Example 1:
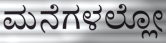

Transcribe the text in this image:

ಮನೆಗಳಲ್ಲೋ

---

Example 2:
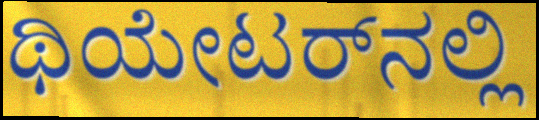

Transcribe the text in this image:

ಥಿಯೇಟರ್‌ನಲ್ಲಿ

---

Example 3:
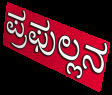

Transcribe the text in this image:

ಪ್ರಫುಲ್ಲನ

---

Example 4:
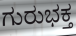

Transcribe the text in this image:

ಗುರುಭಕ್ತ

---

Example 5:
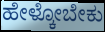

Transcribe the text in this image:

ಹೇಳ್ಕೋಬೇಕು